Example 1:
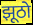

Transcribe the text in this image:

झूठो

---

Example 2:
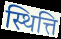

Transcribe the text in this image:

स्थित्ति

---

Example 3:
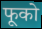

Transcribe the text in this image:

फूको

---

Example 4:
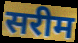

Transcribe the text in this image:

सरीम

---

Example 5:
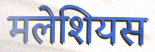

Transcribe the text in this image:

मलेशियस